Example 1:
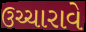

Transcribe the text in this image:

ઉચ્ચારાવે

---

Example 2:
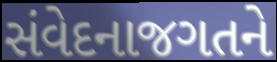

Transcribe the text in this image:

સંવેદનાજગતને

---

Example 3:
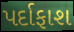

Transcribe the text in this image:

પર્દાફાશ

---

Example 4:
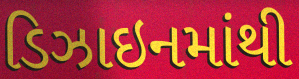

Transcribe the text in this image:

ડિઝાઇનમાંથી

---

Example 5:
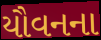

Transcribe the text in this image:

યૌવનના